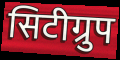
सिटीग्रुप